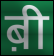
ब़ी